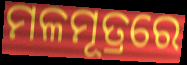
ମଳମୂତ୍ରରେ